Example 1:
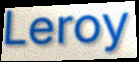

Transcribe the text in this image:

Leroy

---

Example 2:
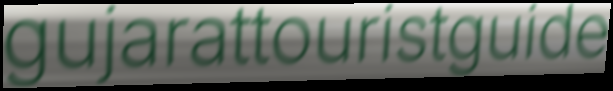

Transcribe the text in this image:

gujarattouristguide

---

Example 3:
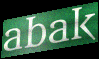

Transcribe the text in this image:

abak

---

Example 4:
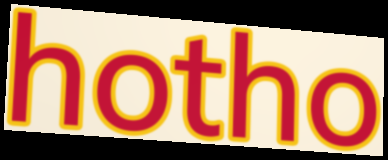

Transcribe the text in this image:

hotho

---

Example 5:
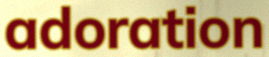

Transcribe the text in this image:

adoration